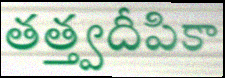
తత్త్వదీపికా